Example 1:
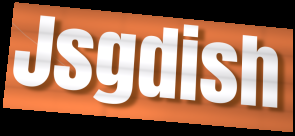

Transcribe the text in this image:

Jsgdish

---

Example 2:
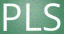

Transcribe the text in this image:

PLS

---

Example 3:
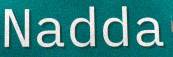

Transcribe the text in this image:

Nadda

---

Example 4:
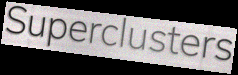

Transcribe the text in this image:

Superclusters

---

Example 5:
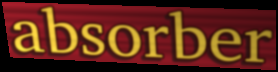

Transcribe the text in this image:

absorber